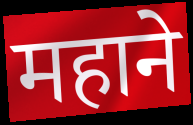
महाने